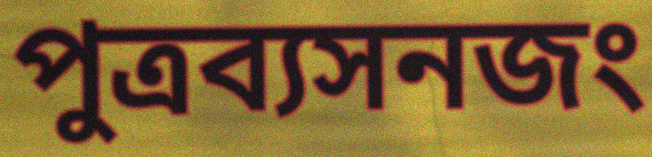
পুত্রব্যসনজং